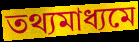
তথ্যমাধ্যমে